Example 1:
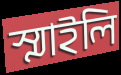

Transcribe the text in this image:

স্মাইলি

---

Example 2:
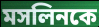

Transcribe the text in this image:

মসলিনকে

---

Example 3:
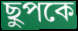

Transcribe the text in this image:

ছুপকে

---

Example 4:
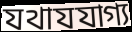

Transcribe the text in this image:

যথাযযাগ্য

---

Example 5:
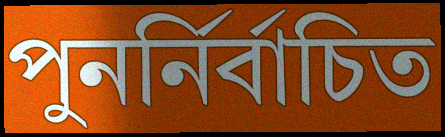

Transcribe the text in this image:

পুনর্নির্বাচিত